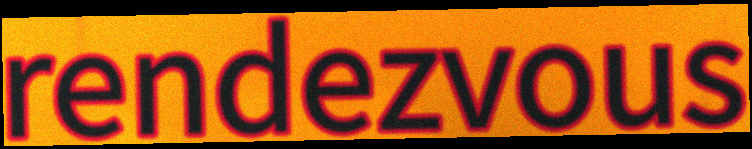
rendezvous